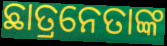
ଛାତ୍ରନେତାଙ୍କ